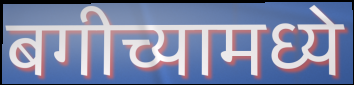
बगीच्यामध्ये